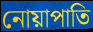
নোয়াপাতি